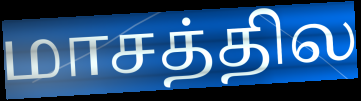
மாசத்தில